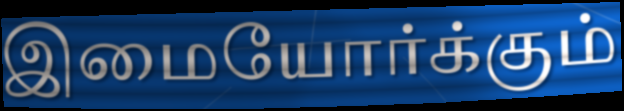
இமையோர்க்கும்